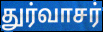
துர்வாசர்